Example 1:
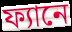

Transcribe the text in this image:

ফ্যানে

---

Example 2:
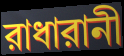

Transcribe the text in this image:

রাধারানী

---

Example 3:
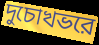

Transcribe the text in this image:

দুচোখভরে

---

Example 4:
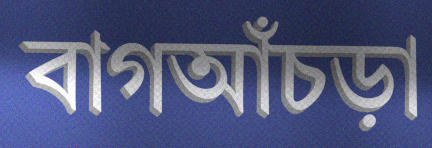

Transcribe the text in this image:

বাগআঁচড়া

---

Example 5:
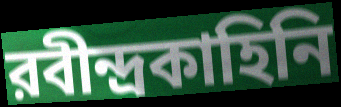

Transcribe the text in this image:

রবীন্দ্রকাহিনি